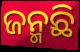
ଜନ୍ମଛି